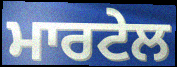
ਮਾਰਟੇਲ